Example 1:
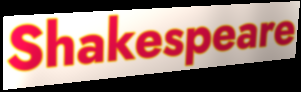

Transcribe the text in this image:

Shakespeare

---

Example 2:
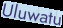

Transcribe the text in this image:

Uluwatu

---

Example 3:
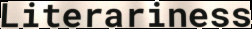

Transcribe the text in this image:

Literariness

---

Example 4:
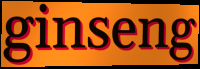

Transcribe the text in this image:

ginseng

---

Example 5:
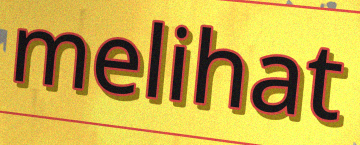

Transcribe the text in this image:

melihat